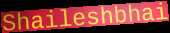
Shaileshbhai